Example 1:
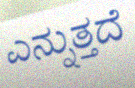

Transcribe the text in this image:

ಎನ್ನುತ್ತದೆ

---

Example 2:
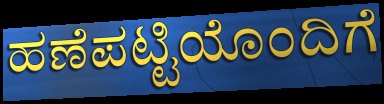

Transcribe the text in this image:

ಹಣೆಪಟ್ಟಿಯೊಂದಿಗೆ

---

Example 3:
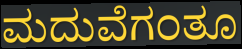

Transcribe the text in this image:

ಮದುವೆಗಂತೂ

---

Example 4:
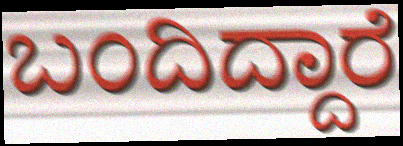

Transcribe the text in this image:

ಬಂದಿದ್ದಾರೆ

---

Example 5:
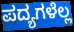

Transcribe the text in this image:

ಪದ್ಯಗಳೆಲ್ಲ